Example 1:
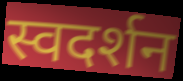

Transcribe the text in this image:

स्वदर्शन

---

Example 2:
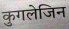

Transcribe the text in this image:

कुगलेजिन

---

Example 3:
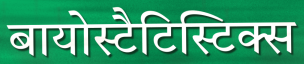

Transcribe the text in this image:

बायोस्टैटिस्टिक्स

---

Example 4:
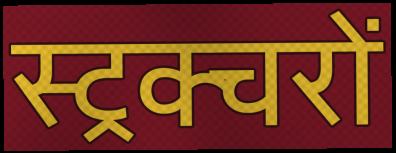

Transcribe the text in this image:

स्ट्रक्चरों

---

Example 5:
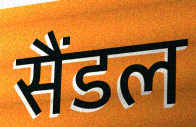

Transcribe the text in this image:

सैंडल